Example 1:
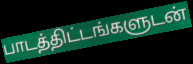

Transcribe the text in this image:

பாடத்திட்டங்களுடன்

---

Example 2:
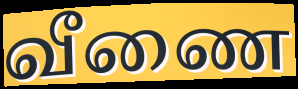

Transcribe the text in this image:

வீணை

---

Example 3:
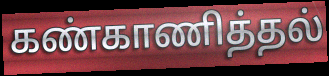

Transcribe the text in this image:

கண்காணித்தல்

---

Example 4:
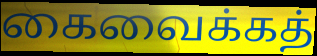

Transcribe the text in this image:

கைவைக்கத்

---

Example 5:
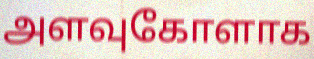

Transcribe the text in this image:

அளவுகோளாக